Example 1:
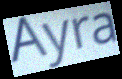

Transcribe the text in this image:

Ayra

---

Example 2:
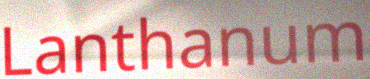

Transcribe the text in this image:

Lanthanum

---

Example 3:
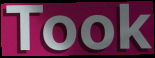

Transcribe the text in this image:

Took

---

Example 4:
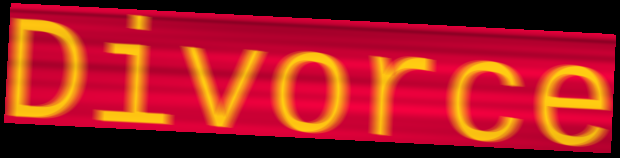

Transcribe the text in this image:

Divorce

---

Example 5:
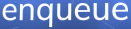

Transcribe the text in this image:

enqueue